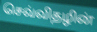
செவ்விதழின்